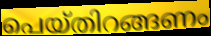
പെയ്തിറങ്ങണം